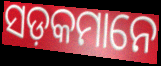
ସଡ଼କମାନେ